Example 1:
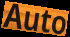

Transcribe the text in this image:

Auto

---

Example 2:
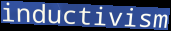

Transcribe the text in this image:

inductivism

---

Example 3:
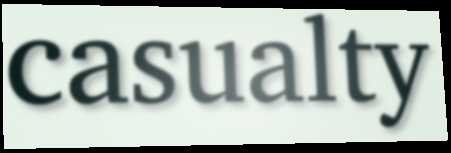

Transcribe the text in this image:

casualty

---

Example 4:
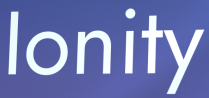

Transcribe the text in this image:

Ionity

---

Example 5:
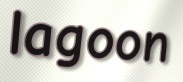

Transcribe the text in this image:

lagoon